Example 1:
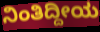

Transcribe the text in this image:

ನಿಂತಿದ್ದೀಯ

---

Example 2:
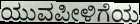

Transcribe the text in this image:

ಯುವಪೀಳಿಗೆಯ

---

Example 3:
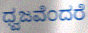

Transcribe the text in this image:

ಧ್ವಜವೆಂದರೆ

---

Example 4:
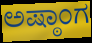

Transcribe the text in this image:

ಅಷ್ಠಾಂಗ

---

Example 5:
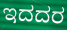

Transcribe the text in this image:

ಇದದರ